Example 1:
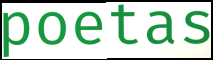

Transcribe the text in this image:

poetas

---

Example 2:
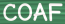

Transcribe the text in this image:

COAF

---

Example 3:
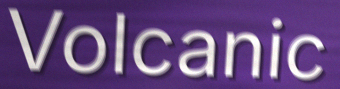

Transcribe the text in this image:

Volcanic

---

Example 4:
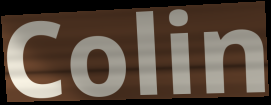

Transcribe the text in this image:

Colin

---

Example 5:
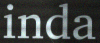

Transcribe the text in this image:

inda